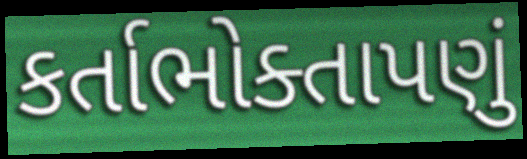
કર્તાભોક્તાપણું